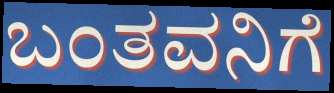
ಬಂತವನಿಗೆ